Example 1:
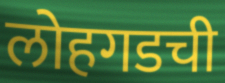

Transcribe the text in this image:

लोहगडची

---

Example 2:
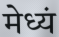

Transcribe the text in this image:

मेध्यं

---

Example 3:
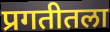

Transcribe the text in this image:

प्रगतीतला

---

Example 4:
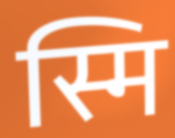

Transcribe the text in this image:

स्मि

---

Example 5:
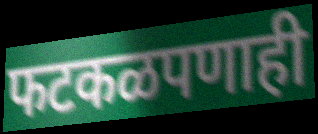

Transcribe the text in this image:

फटकळपणाही